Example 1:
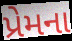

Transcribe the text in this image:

પ્રેમના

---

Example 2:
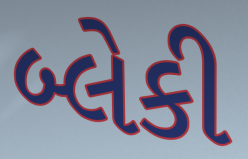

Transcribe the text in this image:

બ્લેકી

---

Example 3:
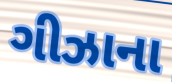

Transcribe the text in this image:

ગીઝાના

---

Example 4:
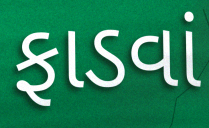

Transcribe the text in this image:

ફાડવાં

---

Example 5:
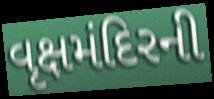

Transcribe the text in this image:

વૃક્ષમંદિરની